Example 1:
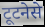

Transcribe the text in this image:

टूटनेसे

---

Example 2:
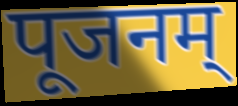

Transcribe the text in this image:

पूजनम्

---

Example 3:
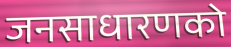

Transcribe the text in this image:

जनसाधारणको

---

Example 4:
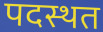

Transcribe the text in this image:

पदस्थत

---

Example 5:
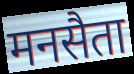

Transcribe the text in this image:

मनसैता